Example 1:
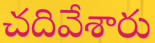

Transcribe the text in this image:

చదివేశారు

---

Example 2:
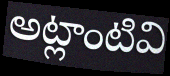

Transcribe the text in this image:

అట్లాంటివి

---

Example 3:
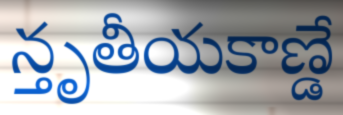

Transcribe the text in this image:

న్తృతీయకాణ్డే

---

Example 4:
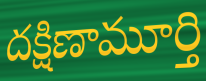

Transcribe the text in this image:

దక్షిణామూర్తి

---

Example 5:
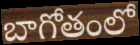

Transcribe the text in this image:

బాగోతంలో